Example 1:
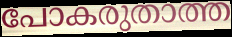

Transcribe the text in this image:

പോകരുതാത്ത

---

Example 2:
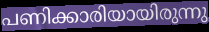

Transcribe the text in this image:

പണിക്കാരിയായിരുന്നു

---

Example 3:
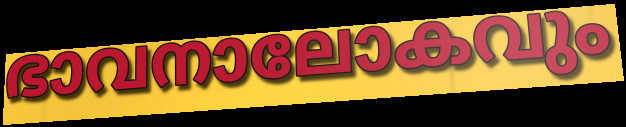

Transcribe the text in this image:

ഭാവനാലോകവും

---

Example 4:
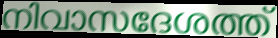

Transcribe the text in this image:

നിവാസദേശത്ത്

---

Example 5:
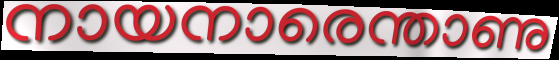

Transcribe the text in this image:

നായനാരെന്താണു